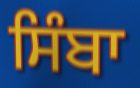
ਸਿੰਬਾ